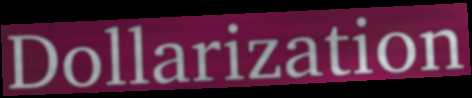
Dollarization